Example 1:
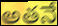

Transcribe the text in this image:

అతనే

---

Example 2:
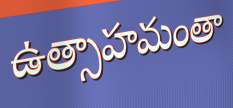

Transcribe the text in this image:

ఉత్సాహమంతా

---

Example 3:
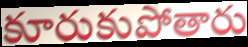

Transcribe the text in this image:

కూరుకుపోతారు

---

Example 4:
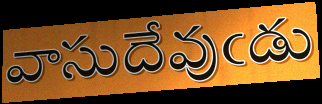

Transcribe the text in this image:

వాసుదేవుఁడు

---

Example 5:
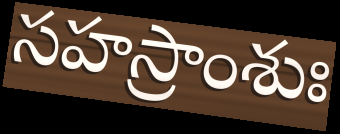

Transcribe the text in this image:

సహస్రాంశుః